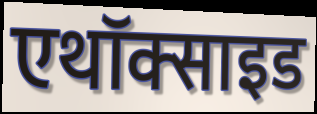
एथॉक्साइड